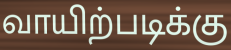
வாயிற்படிக்கு